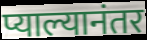
प्याल्यानंतर